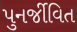
પુનર્જીવિત